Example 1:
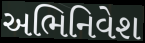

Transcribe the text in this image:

અભિનિવેશ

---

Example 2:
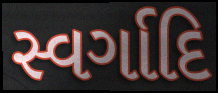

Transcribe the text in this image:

સ્વર્ગાદિ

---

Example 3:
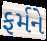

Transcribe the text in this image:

ફર્મને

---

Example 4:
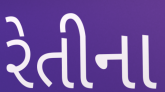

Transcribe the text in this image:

રેતીના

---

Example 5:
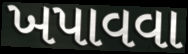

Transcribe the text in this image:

ખપાવવા